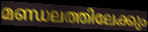
മണ്ഡലത്തിലേക്കും